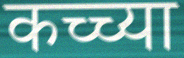
कच्च्या